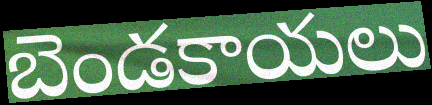
బెండకాయలు